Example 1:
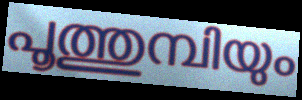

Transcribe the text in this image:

പൂത്തുമ്പിയും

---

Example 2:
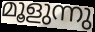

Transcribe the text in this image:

മൂളുന്നു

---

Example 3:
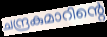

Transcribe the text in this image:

ചന്ദ്രകുമാറിന്റെ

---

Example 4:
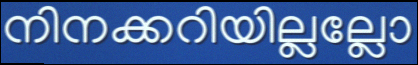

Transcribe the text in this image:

നിനക്കറിയില്ലല്ലോ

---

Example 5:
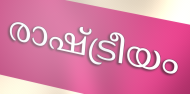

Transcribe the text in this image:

രാഷ്ട്രീയം